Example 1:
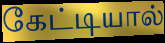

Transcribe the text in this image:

கேட்டியால்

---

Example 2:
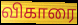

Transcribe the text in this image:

விகாரை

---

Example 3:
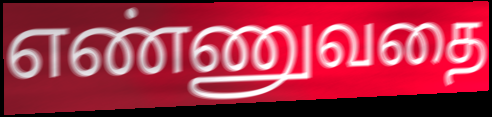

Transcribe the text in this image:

எண்ணுவதை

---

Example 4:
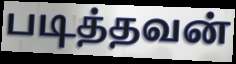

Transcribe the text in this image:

படித்தவன்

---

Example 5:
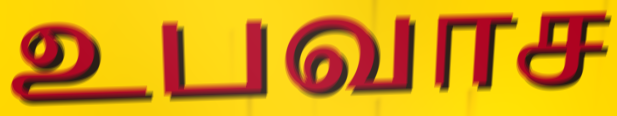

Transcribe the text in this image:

உபவாச